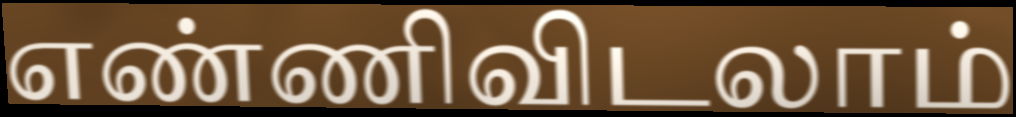
எண்ணிவிடலாம்